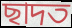
ছাদত